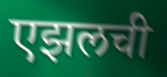
एझलची